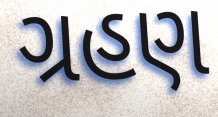
ગ્રહણ